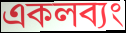
একলব্যং